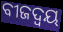
ବୀଜଦ୍ଵୟ